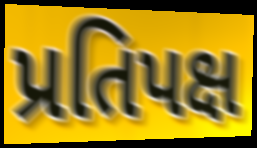
પ્રતિપક્ષ